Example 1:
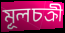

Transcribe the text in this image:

মূলচক্রী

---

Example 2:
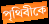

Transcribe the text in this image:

পৃথিবীকে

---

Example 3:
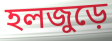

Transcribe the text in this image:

হলজুড়ে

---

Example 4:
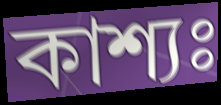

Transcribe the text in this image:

কাশ্যঃ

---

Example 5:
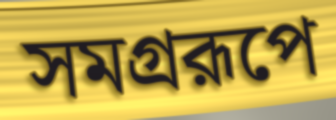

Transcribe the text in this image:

সমগ্ররূপে